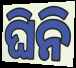
ଘିନି